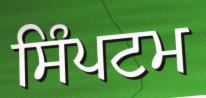
ਸਿੰਪਟਮ